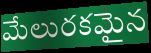
మేలురకమైన